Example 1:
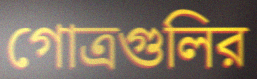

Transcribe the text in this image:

গোত্রগুলির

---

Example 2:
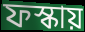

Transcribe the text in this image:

ফস্কায়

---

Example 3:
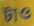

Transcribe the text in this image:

টাও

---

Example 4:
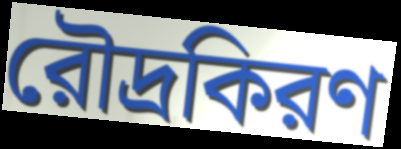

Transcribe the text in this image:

রৌদ্রকিরণ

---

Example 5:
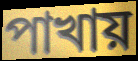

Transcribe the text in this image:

পাখায়